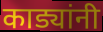
काड्यांनी